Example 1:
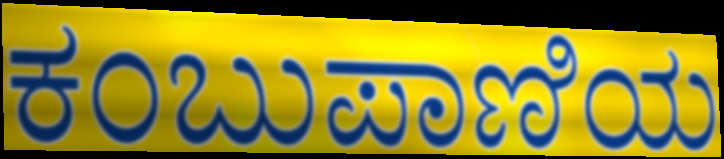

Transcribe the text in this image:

ಕಂಬುಪಾಣಿಯ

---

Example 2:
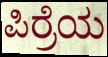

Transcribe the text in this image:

ಪಿರ್ರೆಯ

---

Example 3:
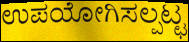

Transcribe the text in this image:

ಉಪಯೋಗಿಸಲ್ಪಟ್ಟ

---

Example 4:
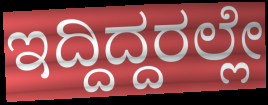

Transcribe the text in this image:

ಇದ್ದಿದ್ದರಲ್ಲೇ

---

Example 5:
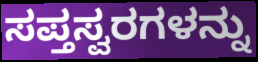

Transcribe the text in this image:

ಸಪ್ತಸ್ವರಗಳನ್ನು